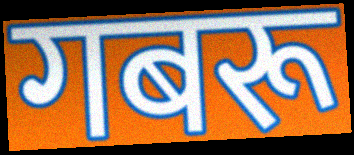
गबरू